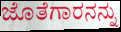
ಜೊತೆಗಾರನನ್ನು